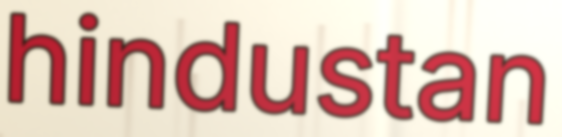
hindustan